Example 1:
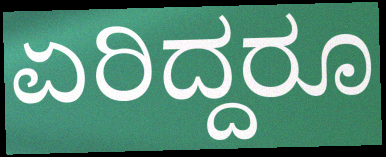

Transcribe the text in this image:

ಏರಿದ್ದರೂ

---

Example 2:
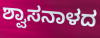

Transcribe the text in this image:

ಶ್ವಾಸನಾಳದ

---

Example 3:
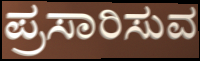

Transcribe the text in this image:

ಪ್ರಸಾರಿಸುವ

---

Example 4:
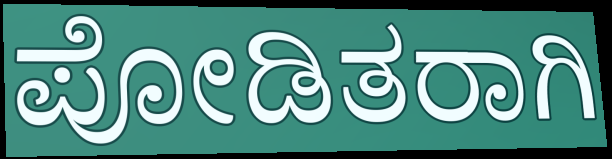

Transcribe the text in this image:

ಪೋಡಿತರಾಗಿ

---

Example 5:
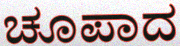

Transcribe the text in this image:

ಚೂಪಾದ